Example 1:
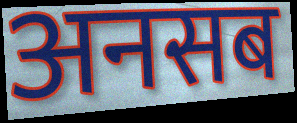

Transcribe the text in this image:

अनसब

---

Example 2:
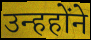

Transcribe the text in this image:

उन्हहोंने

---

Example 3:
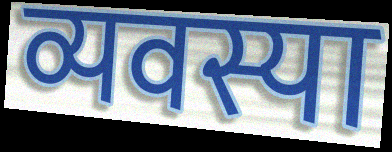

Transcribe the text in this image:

व्यवस्या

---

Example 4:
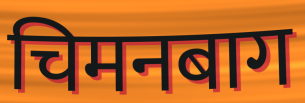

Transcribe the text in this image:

चिमनबाग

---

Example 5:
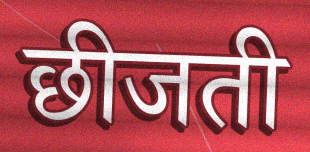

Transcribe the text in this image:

छीजती